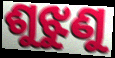
ଶୁଝୁଣୁ